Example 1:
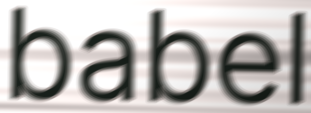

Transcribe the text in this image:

babel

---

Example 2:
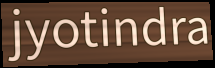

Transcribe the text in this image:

jyotindra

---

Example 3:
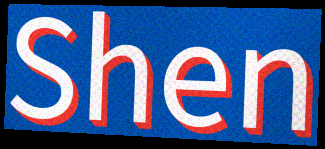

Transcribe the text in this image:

Shen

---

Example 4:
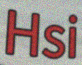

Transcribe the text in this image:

Hsi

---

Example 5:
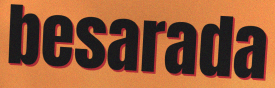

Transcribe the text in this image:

besarada